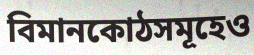
বিমানকোঠসমূহেও